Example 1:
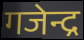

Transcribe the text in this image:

गजेन्‍द्र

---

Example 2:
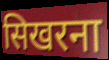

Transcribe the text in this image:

सिखरना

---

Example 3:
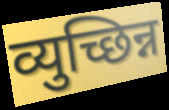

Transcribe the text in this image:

व्युच्छिन्न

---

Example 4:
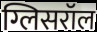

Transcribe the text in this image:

ग्लिसरॉल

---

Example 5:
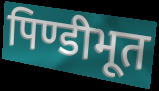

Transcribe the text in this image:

पिण्डीभूत